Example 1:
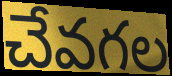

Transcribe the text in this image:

చేవగల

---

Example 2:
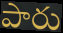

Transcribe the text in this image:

పారు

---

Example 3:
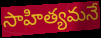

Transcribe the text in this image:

సాహిత్యమనే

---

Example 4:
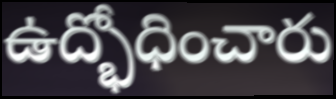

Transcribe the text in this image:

ఉద్భోధించారు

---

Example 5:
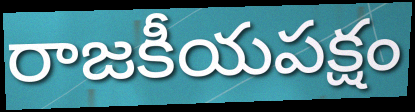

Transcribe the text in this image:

రాజకీయపక్షం